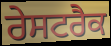
ਰੇਸਟਰੈਕ